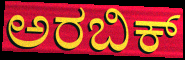
ಅರಬಿಕ್